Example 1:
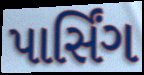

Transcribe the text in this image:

પાર્સિંગ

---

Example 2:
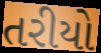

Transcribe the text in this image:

તરીયો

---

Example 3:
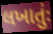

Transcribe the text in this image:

લખાતુંઃ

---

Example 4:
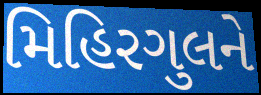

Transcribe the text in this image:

મિહિરગુલને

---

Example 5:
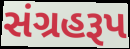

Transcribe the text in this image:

સંગ્રહરૂપ